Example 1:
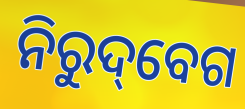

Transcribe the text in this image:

ନିରୁଦ୍‌ବେଗ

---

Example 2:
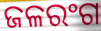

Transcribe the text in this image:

ଜଳରଂଗ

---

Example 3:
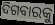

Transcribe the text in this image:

ଦିଗବାରକୁ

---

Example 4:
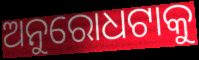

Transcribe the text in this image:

ଅନୁରୋଧଟାକୁ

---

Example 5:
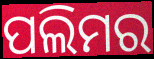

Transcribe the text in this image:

ପଲିମର